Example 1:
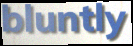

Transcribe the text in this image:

bluntly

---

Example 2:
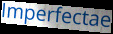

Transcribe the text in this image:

Imperfectae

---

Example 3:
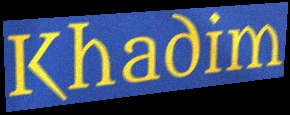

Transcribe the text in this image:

Khadim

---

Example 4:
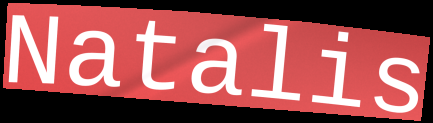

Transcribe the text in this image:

Natalis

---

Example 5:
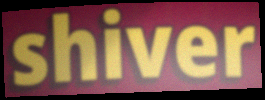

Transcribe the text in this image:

shiver